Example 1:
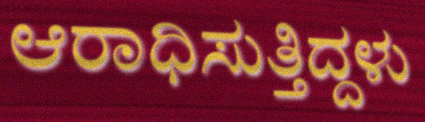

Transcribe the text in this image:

ಆರಾಧಿಸುತ್ತಿದ್ದಳು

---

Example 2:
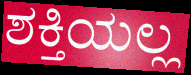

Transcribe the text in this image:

ಶಕ್ತಿಯಲ್ಲ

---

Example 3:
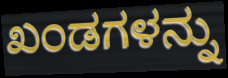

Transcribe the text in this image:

ಖಂಡಗಳನ್ನು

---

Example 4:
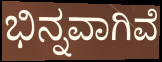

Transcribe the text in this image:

ಭಿನ್ನವಾಗಿವೆ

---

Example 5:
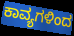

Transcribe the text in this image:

ಕಾವ್ಯಗಳಿಂದ